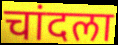
चांदला